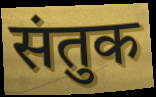
संतुक